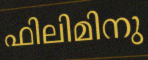
ഫിലിമിനു